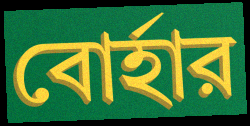
বোর্হার